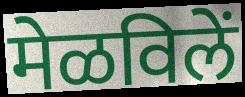
मेळविलें